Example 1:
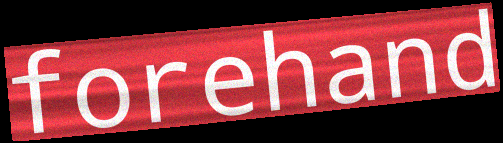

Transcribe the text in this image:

forehand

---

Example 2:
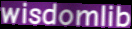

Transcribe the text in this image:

wisdomlib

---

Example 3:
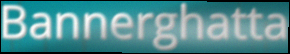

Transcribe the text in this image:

Bannerghatta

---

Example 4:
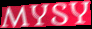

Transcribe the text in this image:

MYSY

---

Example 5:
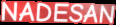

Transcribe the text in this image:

NADESAN